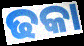
ଢକା